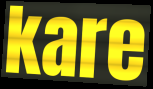
kare